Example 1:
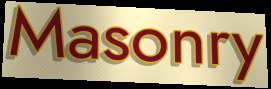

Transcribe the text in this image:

Masonry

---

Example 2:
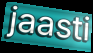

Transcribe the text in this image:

jaasti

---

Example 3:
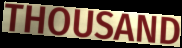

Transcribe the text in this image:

THOUSAND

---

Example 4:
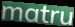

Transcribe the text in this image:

matru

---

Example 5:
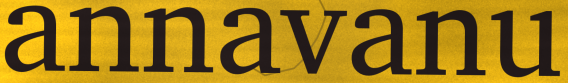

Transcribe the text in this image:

annavanu